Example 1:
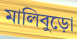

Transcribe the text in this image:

মালিবুড়ো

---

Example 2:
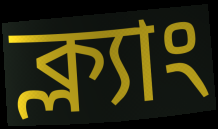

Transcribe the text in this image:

ক্ল্যাং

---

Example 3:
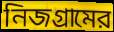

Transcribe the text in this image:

নিজগ্রামের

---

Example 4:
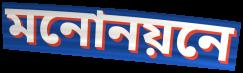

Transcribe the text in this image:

মনোনয়নে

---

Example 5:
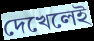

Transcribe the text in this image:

দেখেলেই